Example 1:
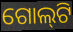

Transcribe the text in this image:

ଗୋଲ୍‍ଟି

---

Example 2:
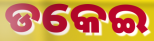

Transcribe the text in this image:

ଡକେଇ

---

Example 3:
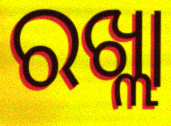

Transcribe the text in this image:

ରଖ୍ଲା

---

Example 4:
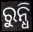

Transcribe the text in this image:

ରୁନ୍ଧି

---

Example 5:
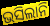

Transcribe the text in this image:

ଭସିଲାନି